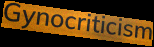
Gynocriticism